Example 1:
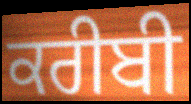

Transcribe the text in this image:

ਕਰੀਬੀ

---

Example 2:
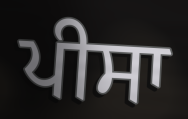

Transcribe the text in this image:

ਪੀਸਾ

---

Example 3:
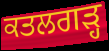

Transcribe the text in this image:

ਕਤਲਗੜ੍ਹ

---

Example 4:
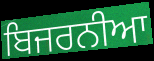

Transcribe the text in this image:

ਬਿਜਰਨੀਆ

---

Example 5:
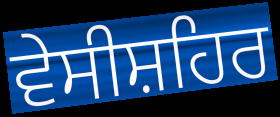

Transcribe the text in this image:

ਵੇਸੀਸ਼ਹਿਰ